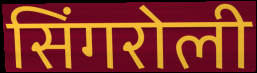
सिंगरोली